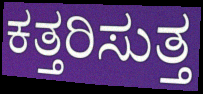
ಕತ್ತರಿಸುತ್ತ